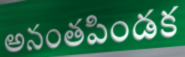
అనంతపిండక